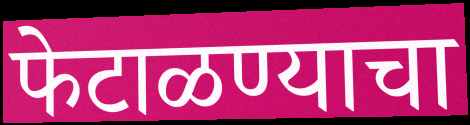
फेटाळण्याचा